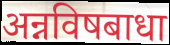
अन्नविषबाधा